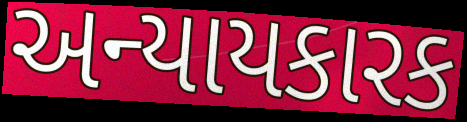
અન્યાયકારક